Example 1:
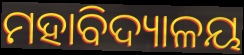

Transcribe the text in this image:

ମହାବିଦ୍ୟାଳୟ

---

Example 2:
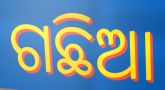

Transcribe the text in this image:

ଗଛିଆ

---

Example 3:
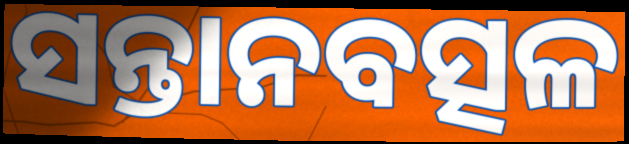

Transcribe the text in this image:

ସନ୍ତାନବତ୍ସଳ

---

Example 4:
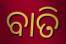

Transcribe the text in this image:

ବାତି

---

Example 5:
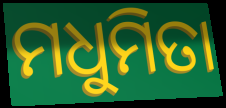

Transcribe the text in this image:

ମଧୁମିତା